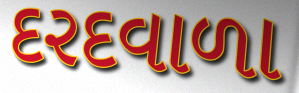
દરદવાળા